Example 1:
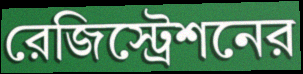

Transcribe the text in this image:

রেজিস্ট্রেশনের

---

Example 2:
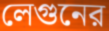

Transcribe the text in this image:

লেগুনের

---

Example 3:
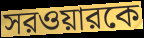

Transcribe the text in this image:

সরওয়ারকে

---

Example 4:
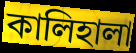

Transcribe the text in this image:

কালিহালা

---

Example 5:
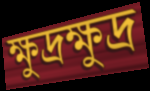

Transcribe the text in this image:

ক্ষুদ্রক্ষুদ্র